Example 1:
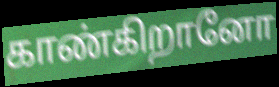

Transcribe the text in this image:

காண்கிறானோ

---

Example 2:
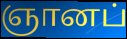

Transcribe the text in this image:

ஞானப்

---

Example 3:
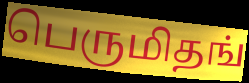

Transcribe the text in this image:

பெருமிதங்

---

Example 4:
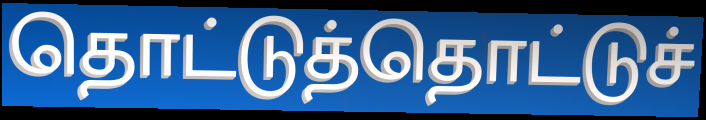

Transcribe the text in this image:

தொட்டுத்தொட்டுச்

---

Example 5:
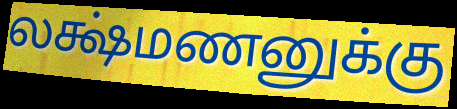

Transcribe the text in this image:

லக்ஷ்மணனுக்கு